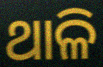
ଥାଳି